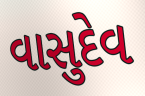
વાસુદેવ